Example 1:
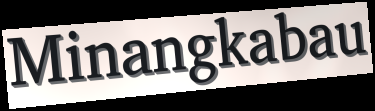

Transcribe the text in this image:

Minangkabau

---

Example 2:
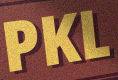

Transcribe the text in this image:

PKL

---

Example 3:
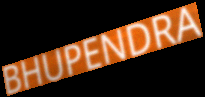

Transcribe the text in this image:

BHUPENDRA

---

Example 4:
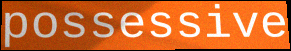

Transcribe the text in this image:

possessive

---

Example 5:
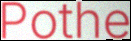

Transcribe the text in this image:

Pothe